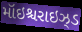
મૉઇશ્ચરાઇઝ્ડ